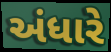
અંધારે